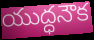
యుద్ధనౌక